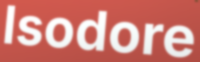
Isodore